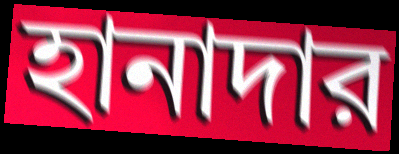
হানাদার